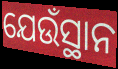
ଯେଉଁସ୍ଥାନ